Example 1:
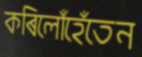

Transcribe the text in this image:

কৰিলোঁহেঁতেন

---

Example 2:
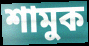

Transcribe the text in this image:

শামুক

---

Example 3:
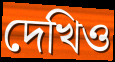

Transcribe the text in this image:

দেখিও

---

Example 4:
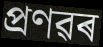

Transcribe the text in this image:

প্ৰণৱৰ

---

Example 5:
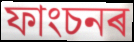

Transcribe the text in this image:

ফাংচনৰ